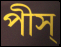
পীস্